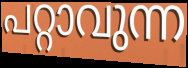
പറ്റാവുന്ന